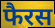
फैरस